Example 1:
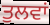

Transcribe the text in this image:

ਤੁਲਵਾਂ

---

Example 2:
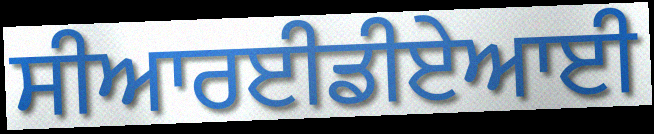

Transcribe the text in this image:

ਸੀਆਰਈਡੀਏਆਈ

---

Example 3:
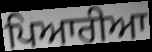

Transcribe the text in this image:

ਪਿਆਰੀਆ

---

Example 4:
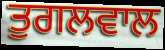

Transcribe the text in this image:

ਤੁਗਲਵਾਲ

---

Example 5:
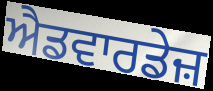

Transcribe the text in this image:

ਐਡਵਾਰਡੇਜ਼